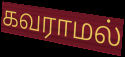
கவராமல்